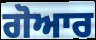
ਗੋਆਰ